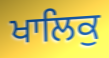
ਖਾਲਿਕੁ